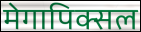
मेगापिक्सल